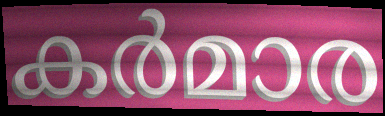
കർമാര